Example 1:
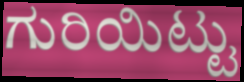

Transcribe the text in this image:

ಗುರಿಯಿಟ್ಟು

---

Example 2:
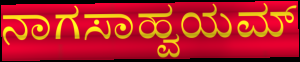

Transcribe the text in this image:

ನಾಗಸಾಹ್ವಯಮ್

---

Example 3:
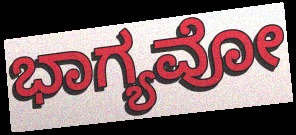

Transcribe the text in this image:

ಭಾಗ್ಯವೋ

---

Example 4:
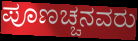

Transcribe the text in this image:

ಪೂಣಚ್ಚನವರು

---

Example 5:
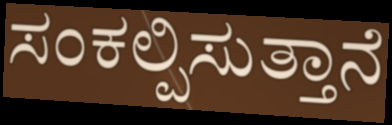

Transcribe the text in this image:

ಸಂಕಲ್ಪಿಸುತ್ತಾನೆ